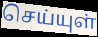
செய்யுள்